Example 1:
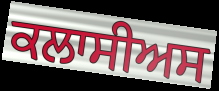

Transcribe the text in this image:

ਕਲਾਸੀਅਸ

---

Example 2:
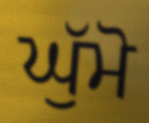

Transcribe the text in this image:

ਘੁੱਮੋ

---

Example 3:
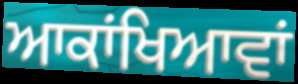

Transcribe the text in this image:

ਆਕਾਂਖਿਆਵਾਂ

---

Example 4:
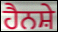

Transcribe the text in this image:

ਹੈਨਸ਼ੇ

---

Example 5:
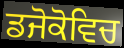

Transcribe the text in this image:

ਡਜੋਕੋਵਿਚ